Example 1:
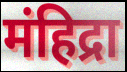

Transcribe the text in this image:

मंहिद्रा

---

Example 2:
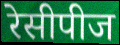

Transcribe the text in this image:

रेसीपीज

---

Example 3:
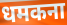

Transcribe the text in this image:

धमकना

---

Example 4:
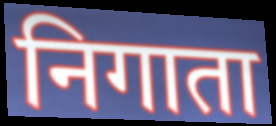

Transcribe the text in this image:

निगाता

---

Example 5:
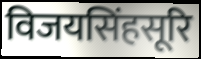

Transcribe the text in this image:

विजयसिंहसूरि